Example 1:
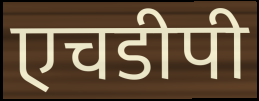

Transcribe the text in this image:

एचडीपी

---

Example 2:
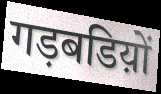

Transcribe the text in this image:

गड़बडिय़ों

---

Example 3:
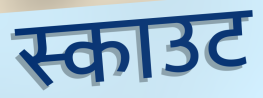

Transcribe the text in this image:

स्काउट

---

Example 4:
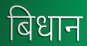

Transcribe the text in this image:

बिधान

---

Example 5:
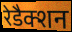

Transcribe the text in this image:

रेडैक्शन